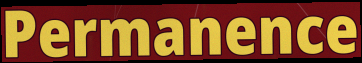
Permanence